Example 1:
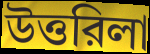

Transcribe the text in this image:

উত্তরিলা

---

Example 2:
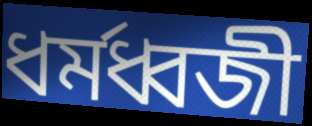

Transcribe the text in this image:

ধর্মধ্বজী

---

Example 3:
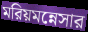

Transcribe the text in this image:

মরিয়মন্নেসার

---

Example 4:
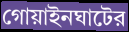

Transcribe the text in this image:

গোয়াইনঘাটের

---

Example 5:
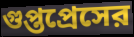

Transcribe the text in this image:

গুপ্তপ্রেসের